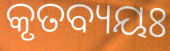
କୃତବ୍ୟୟଃ